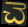
చె